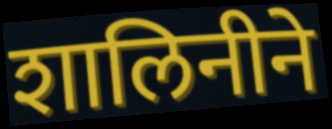
शालिनीने